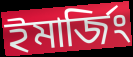
ইমার্জিং